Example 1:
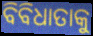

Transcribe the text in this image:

ବିବିଧାତାକୁ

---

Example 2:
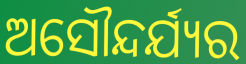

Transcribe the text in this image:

ଅସୌନ୍ଦର୍ଯ୍ୟର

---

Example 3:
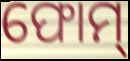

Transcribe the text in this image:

ଫୋମ୍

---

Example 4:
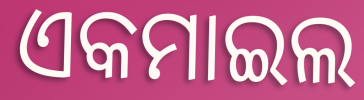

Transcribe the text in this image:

ଏକମାଇଲ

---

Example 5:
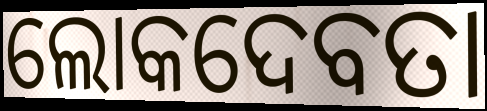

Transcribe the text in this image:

ଲୋକଦେବତା